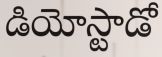
డియోస్టాడో